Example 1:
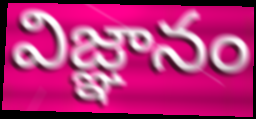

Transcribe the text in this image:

విజ్ఞానం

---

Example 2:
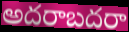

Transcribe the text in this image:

అదరాబదరా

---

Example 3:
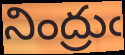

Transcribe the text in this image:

నింద్రుఁ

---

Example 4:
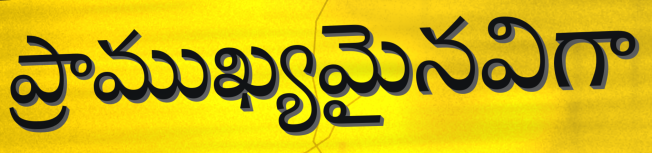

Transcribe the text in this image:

ప్రాముఖ్యమైనవిగా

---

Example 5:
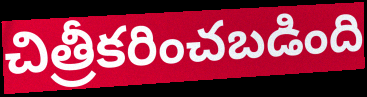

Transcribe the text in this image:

చిత్రీకరించబడింది